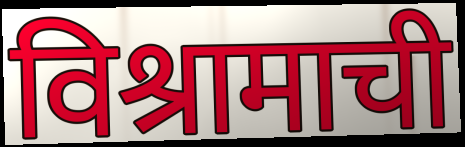
विश्रामाची